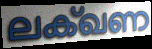
ലക്ഖണ